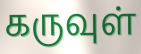
கருவுள்